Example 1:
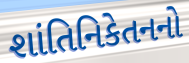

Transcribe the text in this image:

શાંતિનિકેતનનો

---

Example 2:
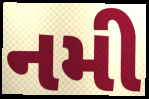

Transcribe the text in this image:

નમી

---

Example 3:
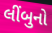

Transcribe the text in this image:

લીંબુનો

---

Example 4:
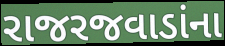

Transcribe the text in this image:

રાજરજવાડાંના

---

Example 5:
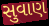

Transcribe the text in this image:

સુવાણ